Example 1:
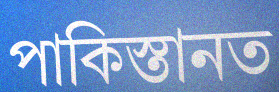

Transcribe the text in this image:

পাকিস্তানত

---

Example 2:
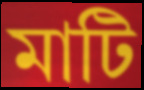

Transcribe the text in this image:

মাটি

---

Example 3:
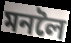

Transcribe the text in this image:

মনলৈ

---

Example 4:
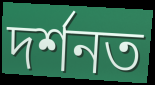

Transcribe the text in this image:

দৰ্শনত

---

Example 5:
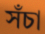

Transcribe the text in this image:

সঁচা